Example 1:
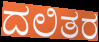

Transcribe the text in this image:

ದಲಿತರ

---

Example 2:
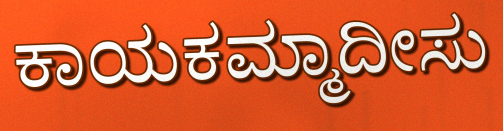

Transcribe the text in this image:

ಕಾಯಕಮ್ಮಾದೀಸು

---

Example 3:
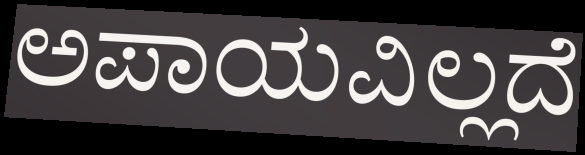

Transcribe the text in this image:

ಅಪಾಯವಿಲ್ಲದೆ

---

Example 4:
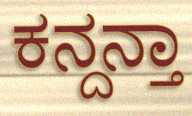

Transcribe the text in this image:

ಕನ್ದನ್ತಾ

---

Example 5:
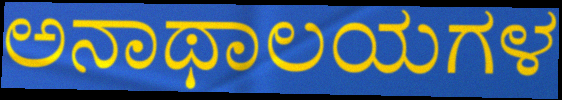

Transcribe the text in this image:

ಅನಾಥಾಲಯಗಳ